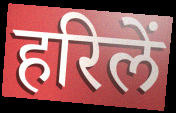
हरिलें